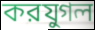
করযুগল